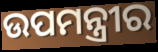
ଉପମନ୍ତ୍ରୀର